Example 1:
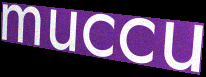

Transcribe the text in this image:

muccu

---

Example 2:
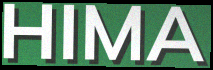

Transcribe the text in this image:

HIMA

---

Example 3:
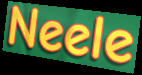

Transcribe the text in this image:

Neele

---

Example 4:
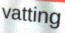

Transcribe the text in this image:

vatting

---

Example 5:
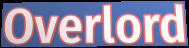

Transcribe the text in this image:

Overlord